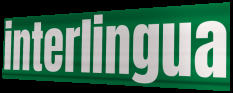
interlingua